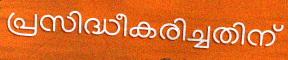
പ്രസിദ്ധീകരിച്ചതിന്